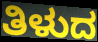
ತಿಳುದ